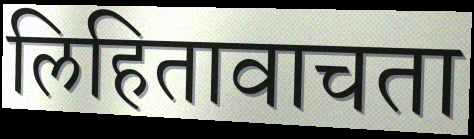
लिहितावाचता